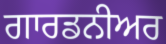
ਗਾਰਡਨੀਅਰ